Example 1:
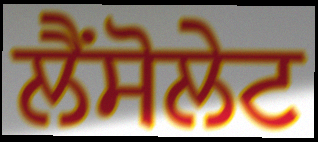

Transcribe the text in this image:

ਲੈਂਸੋਲੇਟ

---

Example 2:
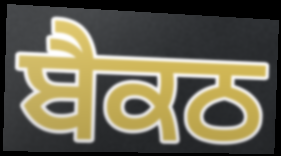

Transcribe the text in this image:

ਬੈਕਠ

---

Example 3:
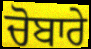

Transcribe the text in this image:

ਚੋਬਾਰੇ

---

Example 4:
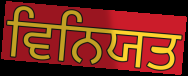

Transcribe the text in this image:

ਵਿਨਿਯਤ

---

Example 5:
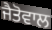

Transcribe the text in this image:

ਜੈਤੋਵਾਲ